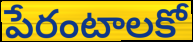
పేరంటాలకో